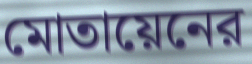
মোতায়েনের